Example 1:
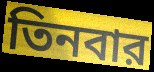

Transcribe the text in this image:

তিনবার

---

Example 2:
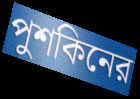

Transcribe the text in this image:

পুশকিনের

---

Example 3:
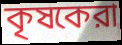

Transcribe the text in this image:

কৃষকেরা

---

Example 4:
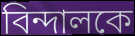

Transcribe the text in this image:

বিন্দালকে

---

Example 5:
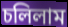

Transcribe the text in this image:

চলিলাম